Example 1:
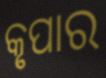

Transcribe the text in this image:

କୃପାର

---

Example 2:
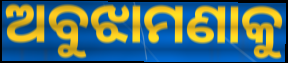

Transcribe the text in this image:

ଅବୁଝାମଣାକୁ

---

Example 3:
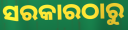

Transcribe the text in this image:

ସରକାରଠାରୁ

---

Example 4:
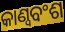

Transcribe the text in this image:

କାଣ୍ୱବଂଶ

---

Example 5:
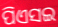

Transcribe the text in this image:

ପିଏସଇ